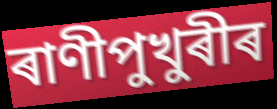
ৰাণীপুখুৰীৰ